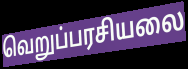
வெறுப்பரசியலை